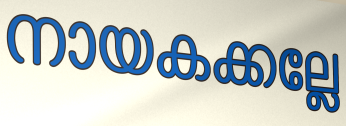
നായകക്കല്ലേ